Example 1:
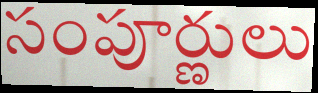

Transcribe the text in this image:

సంపూర్ణులు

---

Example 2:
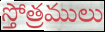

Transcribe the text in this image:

స్తోత్రములు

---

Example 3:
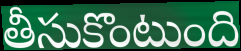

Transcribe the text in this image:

తీసుకొంటుంది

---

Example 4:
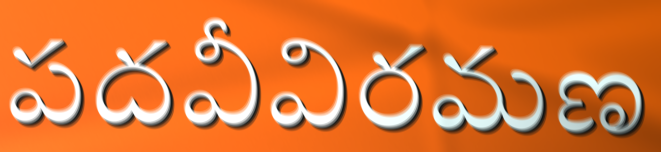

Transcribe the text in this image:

పదవీవిరమణ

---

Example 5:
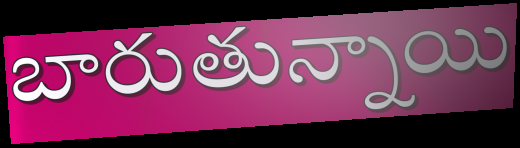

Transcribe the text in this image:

బారుతున్నాయి